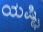
ಯಷ್ಟಿ